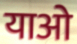
याओ